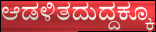
ಆಡಳಿತದುದ್ದಕ್ಕೂ